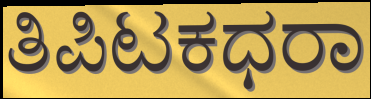
ತಿಪಿಟಕಧರಾ